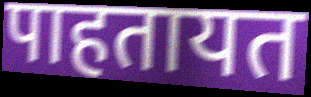
पाहतायत